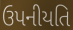
ઉપનીયતિ